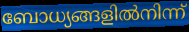
ബോധ്യങ്ങളിൽനിന്ന്